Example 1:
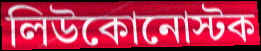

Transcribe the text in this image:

লিউকোনোস্টক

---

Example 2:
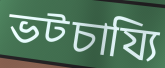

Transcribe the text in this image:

ভট্চায্যি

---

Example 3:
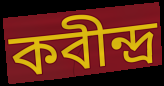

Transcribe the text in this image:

কবীন্দ্র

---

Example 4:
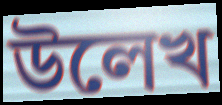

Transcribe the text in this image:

উলেখ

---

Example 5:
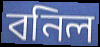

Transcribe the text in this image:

বনিল